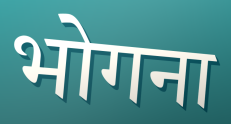
भोगना